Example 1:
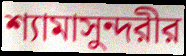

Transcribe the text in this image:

শ্যামাসুন্দরীর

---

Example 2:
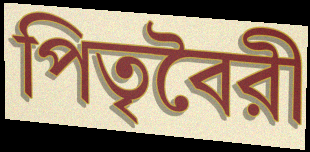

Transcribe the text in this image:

পিতৃবৈরী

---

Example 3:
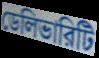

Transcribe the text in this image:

ডেলিভারিটি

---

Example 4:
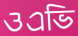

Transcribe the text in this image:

ওএভি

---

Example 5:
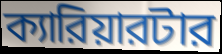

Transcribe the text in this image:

ক্যারিয়ারটার